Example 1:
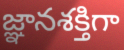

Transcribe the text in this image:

జ్ఞానశక్తిగా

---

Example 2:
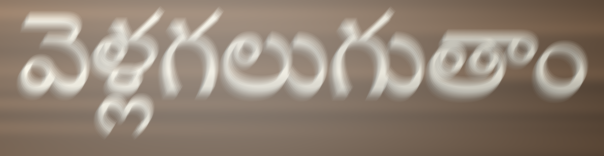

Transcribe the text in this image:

వెళ్లగలుగుతాం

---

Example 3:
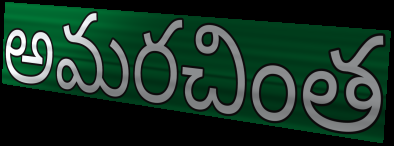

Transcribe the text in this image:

అమరచింత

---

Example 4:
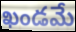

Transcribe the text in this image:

ఖండమే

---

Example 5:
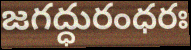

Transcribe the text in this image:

జగద్ధురంధరః